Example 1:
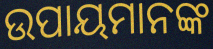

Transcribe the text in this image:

ଉପାୟମାନଙ୍କ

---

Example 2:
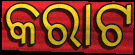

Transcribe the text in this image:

କରାଟ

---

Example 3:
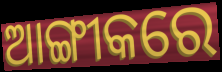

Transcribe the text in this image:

ଆଙ୍ଗୀକରେ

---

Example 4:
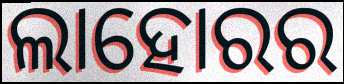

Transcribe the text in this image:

ଲାହୋରର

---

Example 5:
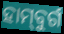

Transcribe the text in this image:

ହାମ୍‌ବୁର୍ଗ